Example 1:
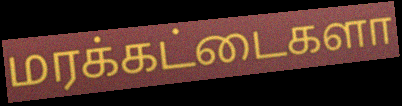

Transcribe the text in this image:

மரக்கட்டைகளா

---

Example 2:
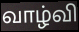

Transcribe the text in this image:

வாழ்வி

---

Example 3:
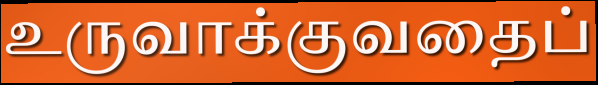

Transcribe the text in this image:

உருவாக்குவதைப்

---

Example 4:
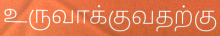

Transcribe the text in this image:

உருவாக்குவதற்கு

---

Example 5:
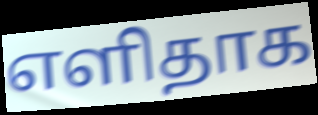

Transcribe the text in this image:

எளிதாக